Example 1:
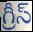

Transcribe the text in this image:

గ్రీస్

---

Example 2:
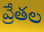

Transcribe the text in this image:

వ్రేతల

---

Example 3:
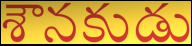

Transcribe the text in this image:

శౌనకుడు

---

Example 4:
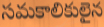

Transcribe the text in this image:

సమకాలికులైన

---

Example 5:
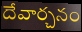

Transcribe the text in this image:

దేవార్చనం